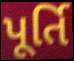
પૂર્તિ